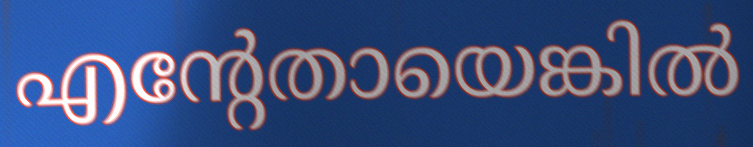
എന്റേതായെങ്കിൽ